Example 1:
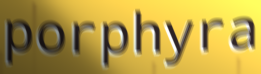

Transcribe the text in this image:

porphyra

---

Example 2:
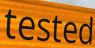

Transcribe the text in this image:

tested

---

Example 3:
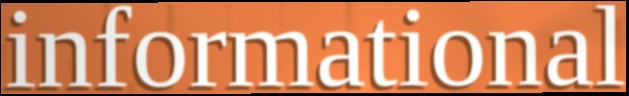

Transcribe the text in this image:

informational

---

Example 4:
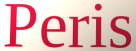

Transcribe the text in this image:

Peris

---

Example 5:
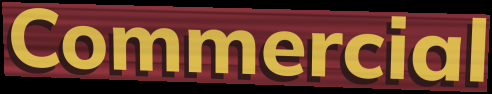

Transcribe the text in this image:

Commercial